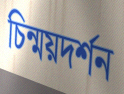
চিন্ময়দর্শন